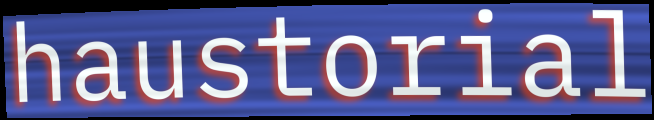
haustorial